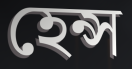
হেন্স